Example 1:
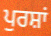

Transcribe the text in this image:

ਪੁਰਸ਼ਾਂ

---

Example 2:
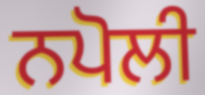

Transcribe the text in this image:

ਨਪੋਲੀ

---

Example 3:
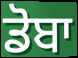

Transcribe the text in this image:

ਡੋਬਾ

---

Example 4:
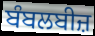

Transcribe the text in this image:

ਬੰਬਲਬੀਜ਼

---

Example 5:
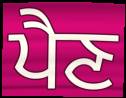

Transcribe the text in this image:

ਪੈਣ